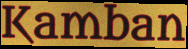
Kamban